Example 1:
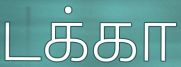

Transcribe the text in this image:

டக்கா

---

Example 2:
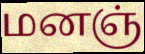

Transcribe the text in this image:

மனஞ்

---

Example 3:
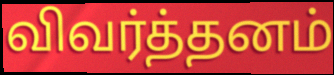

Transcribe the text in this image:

விவர்த்தனம்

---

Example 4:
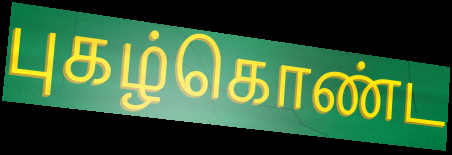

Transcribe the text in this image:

புகழ்கொண்ட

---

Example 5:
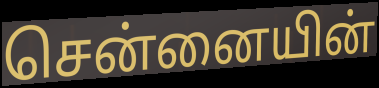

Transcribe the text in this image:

சென்னையின்